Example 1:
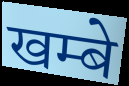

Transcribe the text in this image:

खम्बे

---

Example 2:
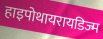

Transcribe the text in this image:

हाइपोथायरायडिज्म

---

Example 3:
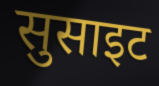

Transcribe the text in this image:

सुसाइट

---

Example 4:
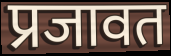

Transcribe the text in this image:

प्रजावत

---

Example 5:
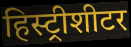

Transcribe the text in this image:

हिस्‍ट्रीशीटर